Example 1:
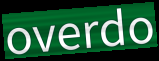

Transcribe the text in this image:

overdo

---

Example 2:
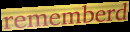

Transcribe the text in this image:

rememberd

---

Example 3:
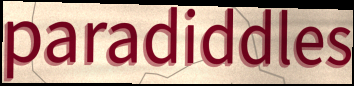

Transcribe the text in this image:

paradiddles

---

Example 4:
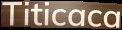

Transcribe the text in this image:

Titicaca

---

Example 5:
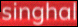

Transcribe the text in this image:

singhal